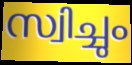
സ്വിച്ചും